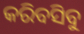
କରିବସିବୁ